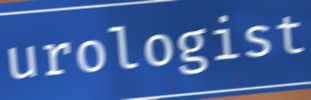
urologist